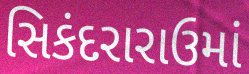
સિકંદરારાઉમાં